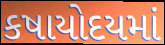
કષાયોદયમાં